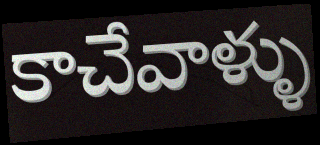
కాచేవాళ్ళు